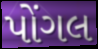
પોંગલ